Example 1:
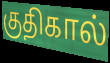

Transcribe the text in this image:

குதிகால்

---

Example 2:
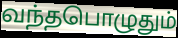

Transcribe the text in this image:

வந்தபொழுதும்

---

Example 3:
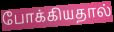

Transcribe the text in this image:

போக்கியதால்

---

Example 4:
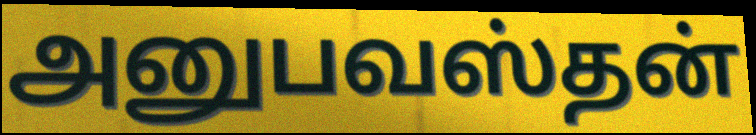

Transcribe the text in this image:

அனுபவஸ்தன்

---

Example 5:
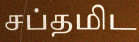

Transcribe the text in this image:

சப்தமிட